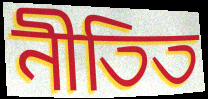
নীতিত